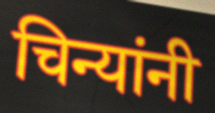
चिन्यांनी